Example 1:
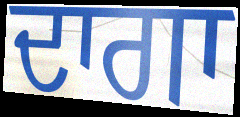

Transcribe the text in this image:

ਦਾਗਾ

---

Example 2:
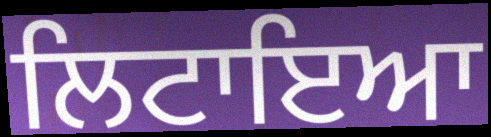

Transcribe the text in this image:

ਲਿਟਾਇਆ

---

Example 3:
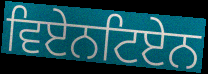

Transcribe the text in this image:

ਵਿਏਨਟਿਏਨ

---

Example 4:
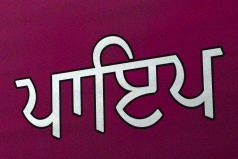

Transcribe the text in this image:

ਪਾਇਪ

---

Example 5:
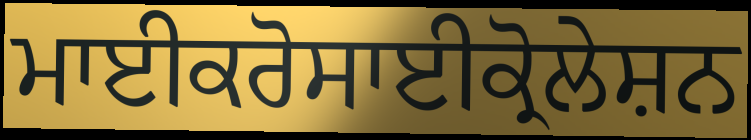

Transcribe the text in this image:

ਮਾਈਕਰੋਸਾਈਕ੍ਰੋਲੇਸ਼ਨ